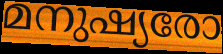
മനുഷ്യരോ